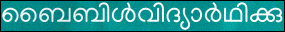
ബൈബിൾവിദ്യാർഥിക്കു